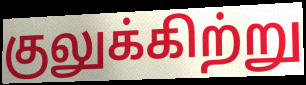
குலுக்கிற்று